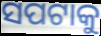
ସପଟାକୁ